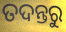
ତଦନ୍ତରୁ